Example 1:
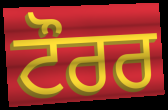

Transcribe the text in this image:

ਟੌਰਰ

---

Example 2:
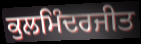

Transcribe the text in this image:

ਕੁਲਮਿੰਦਰਜੀਤ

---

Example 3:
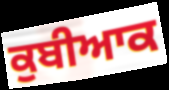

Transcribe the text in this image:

ਕੁਬੀਆਕ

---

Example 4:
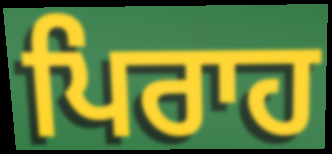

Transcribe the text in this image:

ਪਿਰਾਹ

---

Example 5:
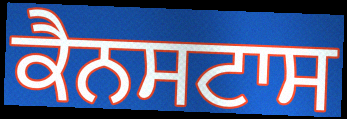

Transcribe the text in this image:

ਕੈਨਸਟਾਸ